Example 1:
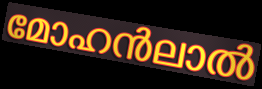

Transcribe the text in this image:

മോഹൻലാൽ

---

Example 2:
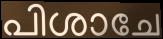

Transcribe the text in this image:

പിശാചേ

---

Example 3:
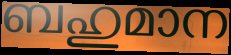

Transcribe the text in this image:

ബഹുമാന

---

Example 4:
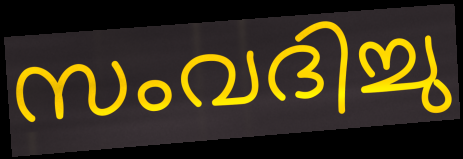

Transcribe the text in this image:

സംവദിച്ചു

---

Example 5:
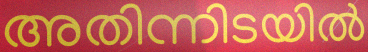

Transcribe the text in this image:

അതിന്നിടയിൽ